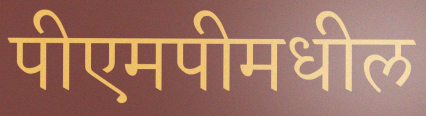
पीएमपीमधील